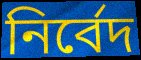
নির্বেদ